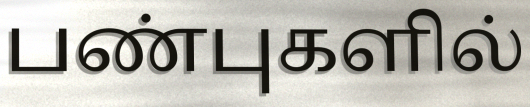
பண்புகளில்